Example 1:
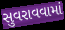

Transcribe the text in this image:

સુવરાવવામાં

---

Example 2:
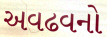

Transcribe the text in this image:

અવઢવનો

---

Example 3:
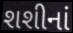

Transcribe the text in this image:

શશીનાં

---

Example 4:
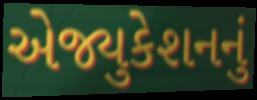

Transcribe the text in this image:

એજ્યુકેશનનું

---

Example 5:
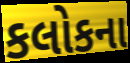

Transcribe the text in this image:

કલોકના